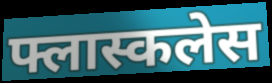
फ्लास्कलेस